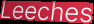
Leeches